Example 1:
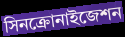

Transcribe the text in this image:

সিনক্রোনাইজেশন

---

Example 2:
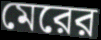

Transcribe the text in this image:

মেরের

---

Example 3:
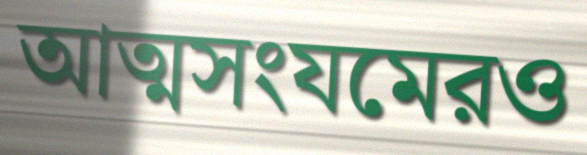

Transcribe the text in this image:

আত্মসংযমেরও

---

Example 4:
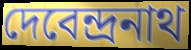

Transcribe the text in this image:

দেবেন্দ্রনাথ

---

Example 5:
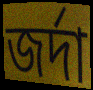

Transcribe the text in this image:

জর্দা